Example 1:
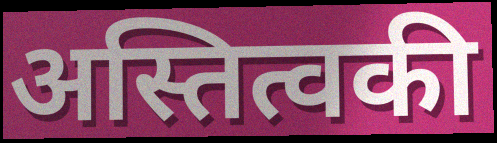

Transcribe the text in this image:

अस्तित्वकी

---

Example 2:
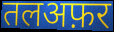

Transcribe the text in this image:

तलअफ़र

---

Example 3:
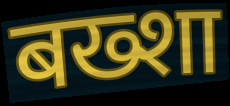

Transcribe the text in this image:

बख्शा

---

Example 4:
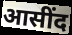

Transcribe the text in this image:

आसींद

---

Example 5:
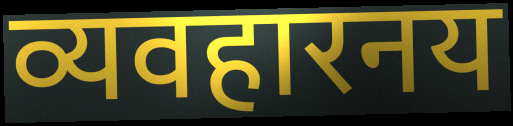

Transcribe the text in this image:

व्यवहारनय